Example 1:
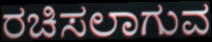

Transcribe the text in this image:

ರಚಿಸಲಾಗುವ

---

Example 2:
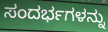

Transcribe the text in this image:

ಸಂದರ್ಭಗಳನ್ನು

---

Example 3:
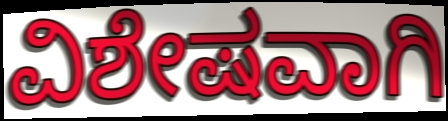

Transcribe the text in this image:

ವಿಶೇಷವಾಗಿ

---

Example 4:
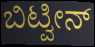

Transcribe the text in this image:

ಬಿಟ್ವೀನ್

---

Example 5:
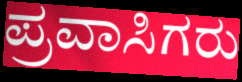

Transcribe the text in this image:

ಪ್ರವಾಸಿಗರು